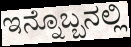
ಇನ್ನೊಬ್ಬನಲ್ಲಿ